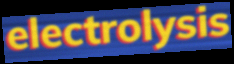
electrolysis